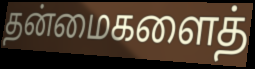
தன்மைகளைத்